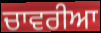
ਚਾਵਰੀਆ